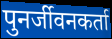
पुनर्जीवनकर्ता